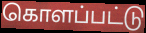
கொளப்பட்டு